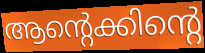
ആന്റെക്കിന്റെ